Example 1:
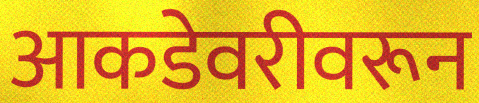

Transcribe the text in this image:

आकडेवरीवरून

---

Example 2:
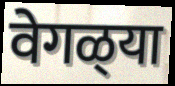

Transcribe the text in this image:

वेगळ्‌या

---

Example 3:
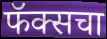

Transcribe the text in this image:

फॅक्सचा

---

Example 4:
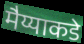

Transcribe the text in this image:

मैय्याकडे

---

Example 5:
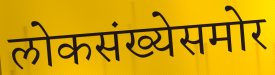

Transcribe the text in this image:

लोकसंख्येसमोर